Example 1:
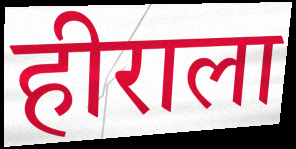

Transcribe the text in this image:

हीराला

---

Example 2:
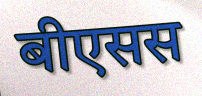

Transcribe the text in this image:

बीएसस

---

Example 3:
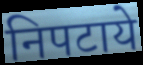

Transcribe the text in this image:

निपटाये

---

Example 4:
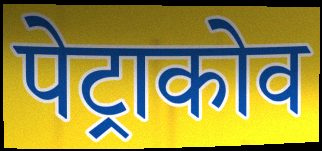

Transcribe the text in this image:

पेट्राकोव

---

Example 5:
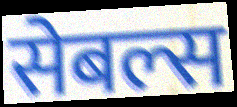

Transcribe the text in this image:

सेबल्स